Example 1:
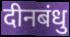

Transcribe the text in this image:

दीनबंधु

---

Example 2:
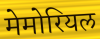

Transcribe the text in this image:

मेमोरियल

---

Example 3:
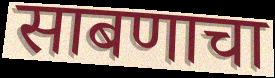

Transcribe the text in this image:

साबणाचा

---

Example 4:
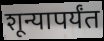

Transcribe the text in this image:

शून्यापर्यंत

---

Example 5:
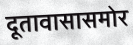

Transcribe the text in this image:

दूतावासासमोर